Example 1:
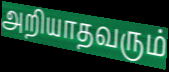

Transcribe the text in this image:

அறியாதவரும்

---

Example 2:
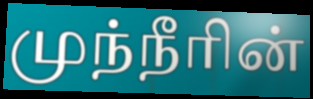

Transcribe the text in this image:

முந்நீரின்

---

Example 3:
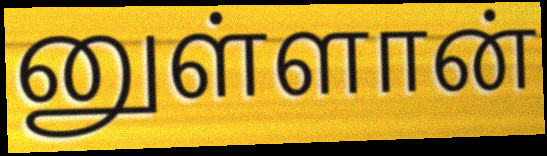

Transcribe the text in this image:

னுள்ளான்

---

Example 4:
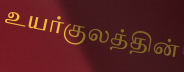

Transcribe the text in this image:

உயர்குலத்தின்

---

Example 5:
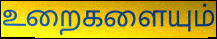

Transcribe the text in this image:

உறைகளையும்